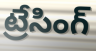
ట్రేసింగ్